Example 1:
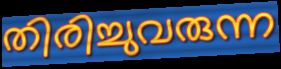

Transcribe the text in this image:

തിരിച്ചുവരുന്ന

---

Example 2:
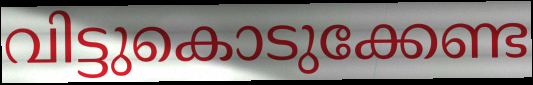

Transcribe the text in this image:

വിട്ടുകൊടുക്കേണ്ട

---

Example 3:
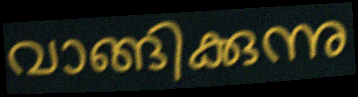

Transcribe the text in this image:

വാങ്ങിക്കുന്നു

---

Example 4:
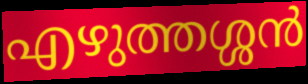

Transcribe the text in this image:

എഴുത്തശ്ശൻ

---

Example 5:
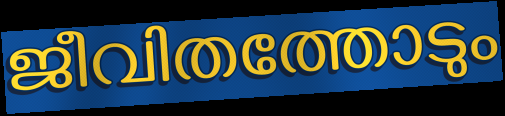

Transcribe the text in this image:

ജീവിതത്തോടും